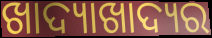
ଖାଦ୍ୟାଖାଦ୍ୟର